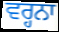
ਵਰ੍ਹਨਾ